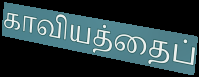
காவியத்தைப்